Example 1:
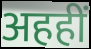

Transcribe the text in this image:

अहहीं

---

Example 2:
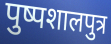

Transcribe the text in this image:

पुष्पशालपुत्र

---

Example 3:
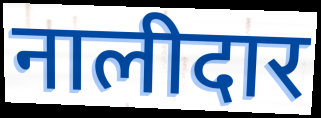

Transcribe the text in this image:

नालीदार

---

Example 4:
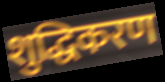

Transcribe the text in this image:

शुद्धिकरण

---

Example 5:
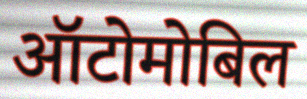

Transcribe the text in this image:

ऑटोमोबिल